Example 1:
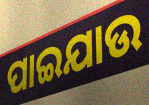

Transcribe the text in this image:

ପାଇଯାଉ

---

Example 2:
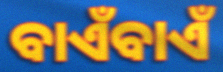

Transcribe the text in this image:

ବାଏଁବାଏଁ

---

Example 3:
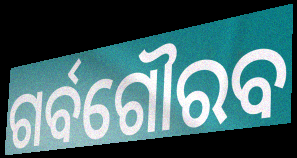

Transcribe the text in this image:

ଗର୍ବଗୌରବ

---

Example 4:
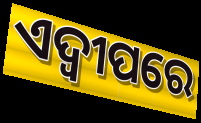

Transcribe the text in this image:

ଏଦ୍ୱୀପରେ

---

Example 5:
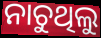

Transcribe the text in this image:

ନାଚୁଥିଲୁ